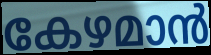
കേഴമാൻ